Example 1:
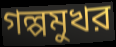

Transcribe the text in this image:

গল্পমুখর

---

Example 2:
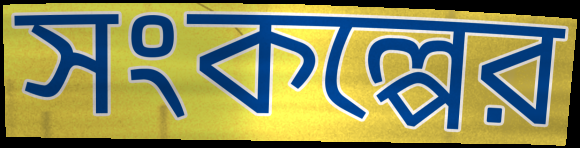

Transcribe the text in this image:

সংকল্পের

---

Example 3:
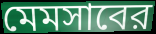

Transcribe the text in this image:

মেমসাবের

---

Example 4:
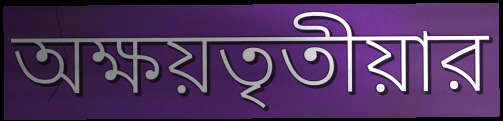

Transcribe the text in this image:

অক্ষয়তৃতীয়ার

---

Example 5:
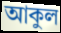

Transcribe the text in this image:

আকুল